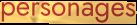
personages